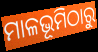
ମାଳଭୂମିଠାରୁ